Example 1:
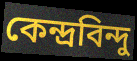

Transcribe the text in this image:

কেন্দ্রবিন্দু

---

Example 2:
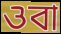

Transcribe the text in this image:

ওবা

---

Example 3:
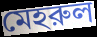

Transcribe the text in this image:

মেহরুল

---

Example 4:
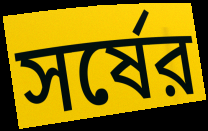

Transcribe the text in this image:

সর্ষের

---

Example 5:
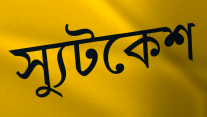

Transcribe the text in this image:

স্যুটকেশ